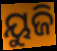
ୟୁଜି